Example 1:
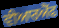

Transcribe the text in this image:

ਵੀਆਰਐੱਫ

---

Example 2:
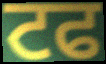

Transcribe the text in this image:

ਟਫ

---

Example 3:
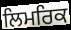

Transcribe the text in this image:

ਲਿਮਰਿਕ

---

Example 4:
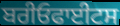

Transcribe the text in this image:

ਬਰੀਓਫਾਈਟਸ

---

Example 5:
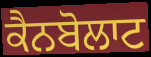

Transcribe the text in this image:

ਕੈਨਬੋਲਾਟ